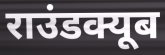
राउंडक्यूब